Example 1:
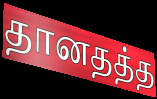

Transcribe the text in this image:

தானதத்த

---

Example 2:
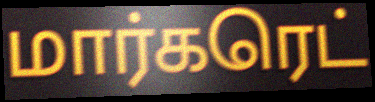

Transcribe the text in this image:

மார்கரெட்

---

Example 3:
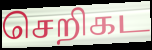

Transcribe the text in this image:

செறிகட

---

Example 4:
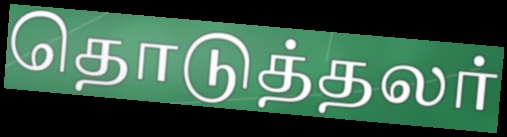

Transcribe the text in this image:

தொடுத்தலர்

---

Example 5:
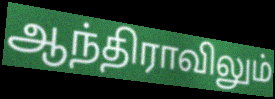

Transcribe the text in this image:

ஆந்திராவிலும்